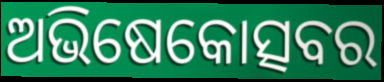
ଅଭିଷେକୋତ୍ସବର